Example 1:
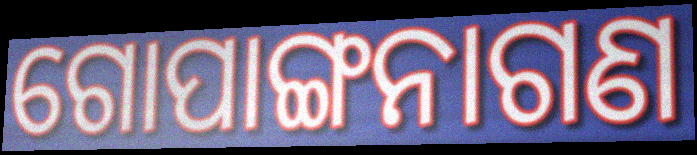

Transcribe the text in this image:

ଗୋପାଙ୍ଗନାଗଣ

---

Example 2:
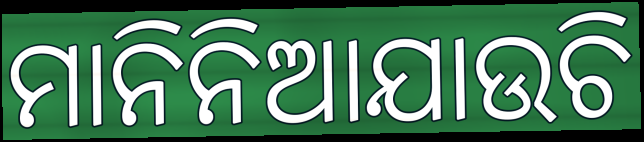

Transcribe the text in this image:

ମାନିନିଆଯାଉଚି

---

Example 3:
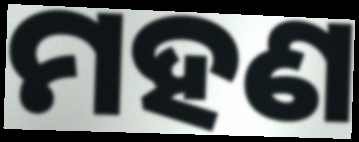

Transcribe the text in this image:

ମହଣ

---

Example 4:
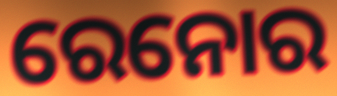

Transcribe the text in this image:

ରେନୋର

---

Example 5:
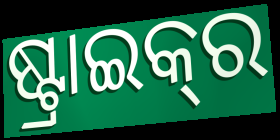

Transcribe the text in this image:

ଷ୍ଟ୍ରାଇକ୍‍ର